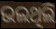
ଭଲଥିଲି